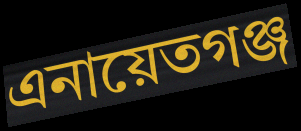
এনায়েতগঞ্জ